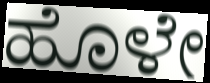
ಹೊಳೇ